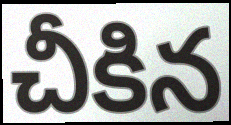
చీకిన